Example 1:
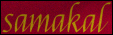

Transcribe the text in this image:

samakal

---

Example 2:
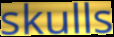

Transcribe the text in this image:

skulls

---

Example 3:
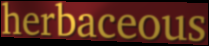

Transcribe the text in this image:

herbaceous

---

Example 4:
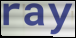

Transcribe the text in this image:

ray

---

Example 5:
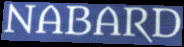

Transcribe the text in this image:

NABARD